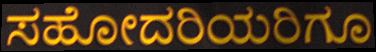
ಸಹೋದರಿಯರಿಗೂ